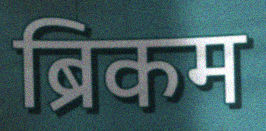
ब्रिकम